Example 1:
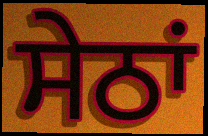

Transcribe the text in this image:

ਸੇਠਾਂ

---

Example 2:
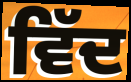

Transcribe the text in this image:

ਵਿੱਦ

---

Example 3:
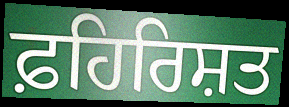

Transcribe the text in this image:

ਫ਼ਹਿਰਿਸ਼ਤ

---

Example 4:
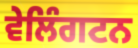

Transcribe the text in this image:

ਵੇਲਿੰਗਟਨ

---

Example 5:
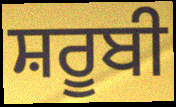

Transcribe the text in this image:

ਸ਼ਰੂਬੀ